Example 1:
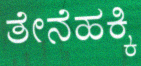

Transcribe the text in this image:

ತೇನೆಹಕ್ಕಿ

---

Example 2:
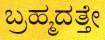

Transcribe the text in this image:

ಬ್ರಹ್ಮದತ್ತೇ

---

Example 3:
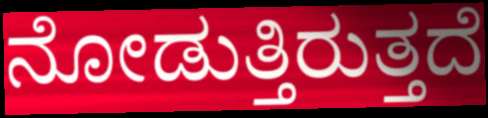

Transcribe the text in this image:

ನೋಡುತ್ತಿರುತ್ತದೆ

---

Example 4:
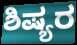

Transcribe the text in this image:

ಶಿಷ್ಯರ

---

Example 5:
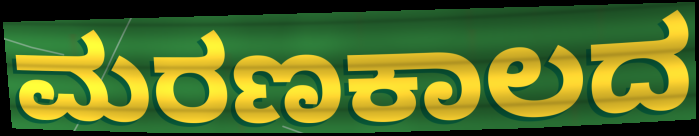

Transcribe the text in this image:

ಮರಣಕಾಲದ